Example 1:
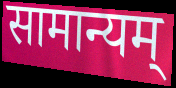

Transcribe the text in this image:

सामान्यम्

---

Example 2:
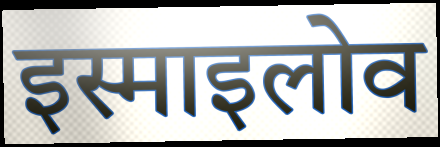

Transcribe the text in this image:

इस्माइलोव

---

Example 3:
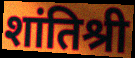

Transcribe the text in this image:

शांतिश्री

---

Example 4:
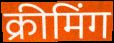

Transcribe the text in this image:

क्रीमिंग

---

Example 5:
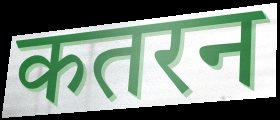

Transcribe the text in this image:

कतरन